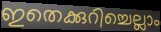
ഇതെക്കുറിച്ചെല്ലാം